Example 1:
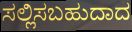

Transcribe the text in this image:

ಸಲ್ಲಿಸಬಹುದಾದ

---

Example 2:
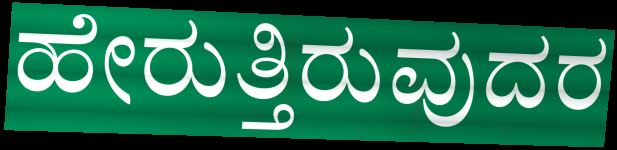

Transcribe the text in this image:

ಹೇರುತ್ತಿರುವುದರ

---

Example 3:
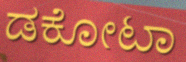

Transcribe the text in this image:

ಡಕೋಟಾ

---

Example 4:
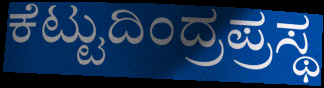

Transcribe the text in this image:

ಕೆಟ್ಟುದಿಂದ್ರಪ್ರಸ್ಥ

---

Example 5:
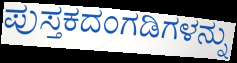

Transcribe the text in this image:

ಪುಸ್ತಕದಂಗಡಿಗಳನ್ನು